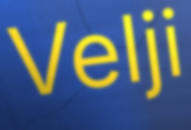
Velji